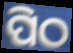
ପିଠ